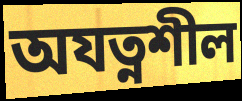
অযত্নশীল